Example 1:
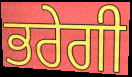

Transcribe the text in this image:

ਭਰੇਗੀ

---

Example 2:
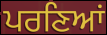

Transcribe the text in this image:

ਪਰਣਿਆਂ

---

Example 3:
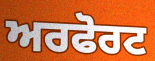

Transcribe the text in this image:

ਅਰਫੋਰਟ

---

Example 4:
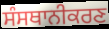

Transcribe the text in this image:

ਸੰਸਥਾਨੀਕਰਣ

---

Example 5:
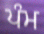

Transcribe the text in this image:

ਪੰਮ